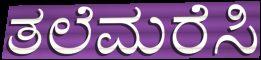
ತಲೆಮರೆಸಿ